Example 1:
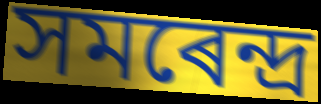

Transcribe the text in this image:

সমৰেন্দ্ৰ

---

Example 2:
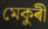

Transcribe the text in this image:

মেকুৰী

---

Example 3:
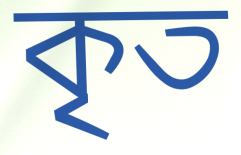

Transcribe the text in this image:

কৃত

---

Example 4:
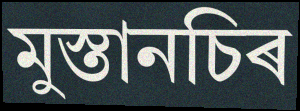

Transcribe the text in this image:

মুস্তানচিৰ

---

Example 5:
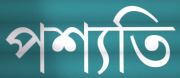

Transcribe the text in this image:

পশ্যতি